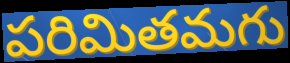
పరిమితమగు